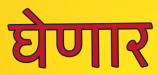
घेणार